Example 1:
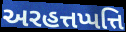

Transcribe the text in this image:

અરહત્તપ્પત્તિ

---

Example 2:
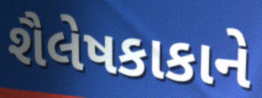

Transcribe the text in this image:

શૈલેષકાકાને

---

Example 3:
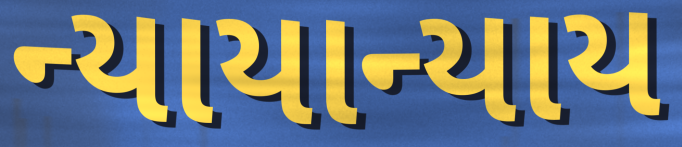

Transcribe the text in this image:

ન્યાયાન્યાય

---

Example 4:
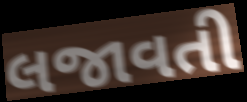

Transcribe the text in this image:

લજાવતી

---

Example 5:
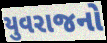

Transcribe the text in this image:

યુવરાજનો